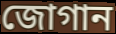
জোগান